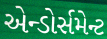
એન્ડોર્સમેન્ટ